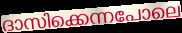
ദാസിക്കെന്നപോലെ